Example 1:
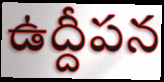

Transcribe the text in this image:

ఉద్దీపన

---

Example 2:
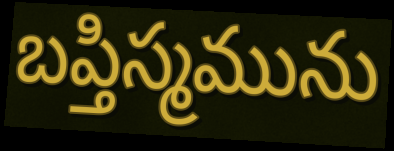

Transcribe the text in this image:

బప్తిస్మమును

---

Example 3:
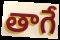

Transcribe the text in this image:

తాగే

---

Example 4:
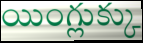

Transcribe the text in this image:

యింగ్లుక్కు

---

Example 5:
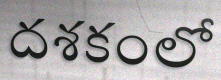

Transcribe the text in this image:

దశకంలో